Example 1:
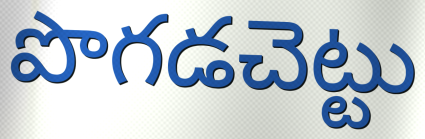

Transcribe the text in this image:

పొగడచెట్టు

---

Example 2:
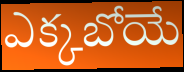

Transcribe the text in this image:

ఎక్కబోయే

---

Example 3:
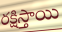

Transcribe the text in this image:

రక్షిస్తాయి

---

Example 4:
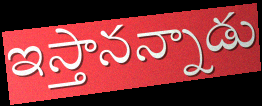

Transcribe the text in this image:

ఇస్తానన్నాడు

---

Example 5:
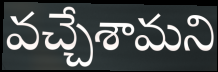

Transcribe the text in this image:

వచ్చేశామని